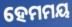
ହେମମୟ